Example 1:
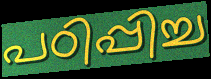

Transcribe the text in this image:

പഠിപ്പിച്ച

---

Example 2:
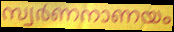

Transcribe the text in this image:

സ്വർണനാണയം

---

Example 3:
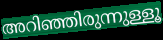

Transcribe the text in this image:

അറിഞ്ഞിരുന്നുള്ളൂ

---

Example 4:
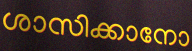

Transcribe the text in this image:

ശാസിക്കാനോ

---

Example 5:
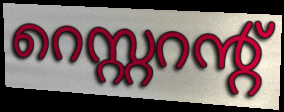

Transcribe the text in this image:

റെസ്റ്ററന്റ്